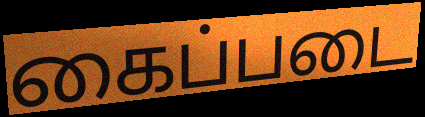
கைப்படை